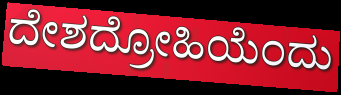
ದೇಶದ್ರೋಹಿಯೆಂದು